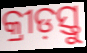
କ୍ରୀଡ଼ସ୍ତୁ